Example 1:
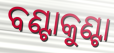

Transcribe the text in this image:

ବଣ୍ଟାକୁଣ୍ଟା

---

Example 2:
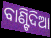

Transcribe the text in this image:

ବାଣ୍ଟିଦିଆ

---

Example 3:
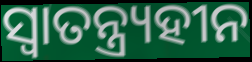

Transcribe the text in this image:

ସ୍ଵାତନ୍ତ୍ର୍ୟହୀନ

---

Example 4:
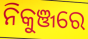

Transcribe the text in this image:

ନିକୁଞ୍ଜରେ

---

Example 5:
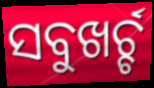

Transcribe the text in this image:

ସବୁଖର୍ଚ୍ଚ